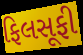
ફિલસૂફી